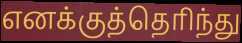
எனக்குத்தெரிந்து